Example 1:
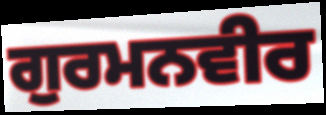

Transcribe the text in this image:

ਗੁਰਮਨਵੀਰ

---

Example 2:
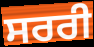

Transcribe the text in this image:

ਸਰਰੀ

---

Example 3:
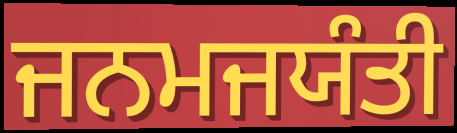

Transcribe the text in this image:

ਜਨਮਜਯੰਤੀ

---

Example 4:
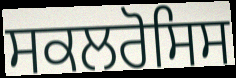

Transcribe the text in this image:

ਸਕਲਰੋਸਿਸ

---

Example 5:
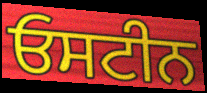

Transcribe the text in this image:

ਓਸਟੀਨ